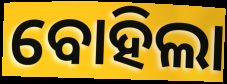
ବୋହିଲା